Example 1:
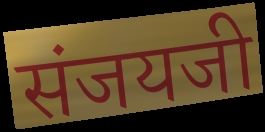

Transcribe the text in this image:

संजयजी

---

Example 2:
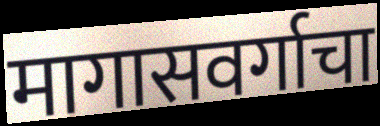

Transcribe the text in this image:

मागासवर्गाचा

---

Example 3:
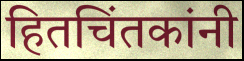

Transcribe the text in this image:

हितचिंतकांनी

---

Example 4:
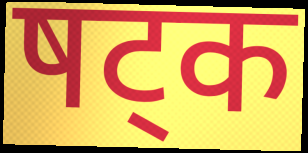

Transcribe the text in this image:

षट्क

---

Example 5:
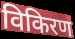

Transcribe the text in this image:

विकिरण